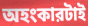
অহংকারটাই